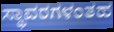
ಸ್ಥಾವರಗಳಂತಹ